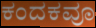
ಕಂದಕವೂ